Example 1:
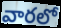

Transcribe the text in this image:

వారలో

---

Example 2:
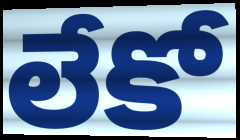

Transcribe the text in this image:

లేకో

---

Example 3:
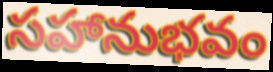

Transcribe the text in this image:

సహానుభవం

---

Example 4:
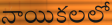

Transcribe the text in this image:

నాయికలలో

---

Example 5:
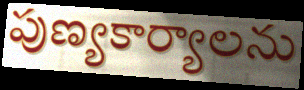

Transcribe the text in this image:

పుణ్యకార్యాలను